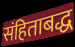
संहिताबद्ध